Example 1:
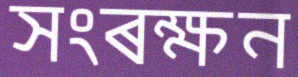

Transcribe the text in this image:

সংৰক্ষন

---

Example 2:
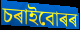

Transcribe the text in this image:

চৰাইবোৰৰ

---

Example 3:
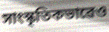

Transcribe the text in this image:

সাংস্কৃতিকভাৱেও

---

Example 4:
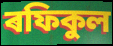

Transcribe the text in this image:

ৰফিকুল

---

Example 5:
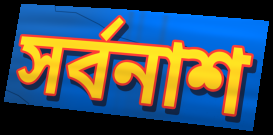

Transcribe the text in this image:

সৰ্বনাশ